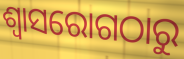
ଶ୍ୱାସରୋଗଠାରୁ